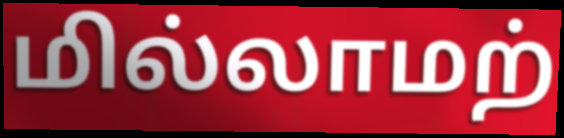
மில்லாமற்